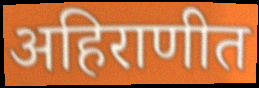
अहिराणीत